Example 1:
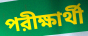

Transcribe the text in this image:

পরীক্ষার্থী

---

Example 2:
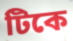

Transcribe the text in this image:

টিকে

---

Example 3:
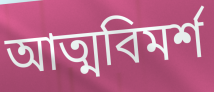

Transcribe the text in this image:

আত্মবিমর্শ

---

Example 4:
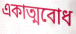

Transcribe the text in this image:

একাত্মবোধ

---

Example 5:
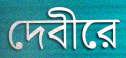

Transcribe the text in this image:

দেবীরে